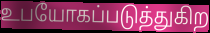
உபயோகப்படுத்துகிற